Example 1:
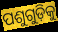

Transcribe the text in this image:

ପଶୁଗୁଡ଼ିକୁ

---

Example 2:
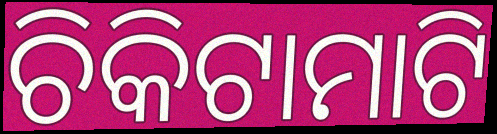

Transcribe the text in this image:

ଚିକିଟାମାଟି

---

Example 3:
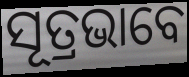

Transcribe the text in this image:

ସୂତ୍ରଭାବେ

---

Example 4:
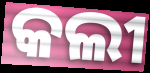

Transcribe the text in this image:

କଲୀ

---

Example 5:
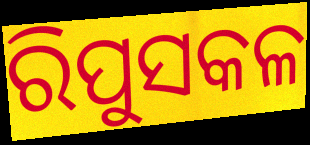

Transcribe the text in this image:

ରିପୁସକଳ